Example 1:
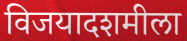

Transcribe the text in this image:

विजयादशमीला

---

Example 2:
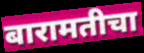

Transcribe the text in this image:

बारामतीचा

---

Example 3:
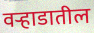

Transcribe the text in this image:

वर्‍हाडातील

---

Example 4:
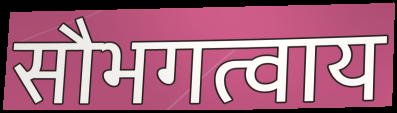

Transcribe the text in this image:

सौभगत्वाय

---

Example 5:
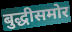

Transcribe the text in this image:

बुद्धीसमोर